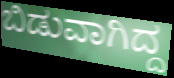
ಬಿಡುವಾಗಿದ್ದ